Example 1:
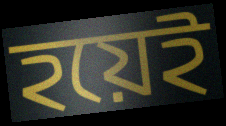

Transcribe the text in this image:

হয়েই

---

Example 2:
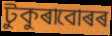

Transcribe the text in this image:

টুকুৰাবোৰৰ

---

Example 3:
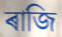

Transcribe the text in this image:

ৰাজি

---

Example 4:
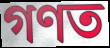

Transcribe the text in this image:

গণত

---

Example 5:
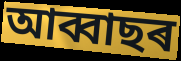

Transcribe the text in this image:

আব্বাছৰ